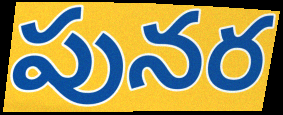
పునర